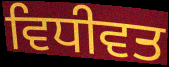
ਵਿਧੀਵਤ